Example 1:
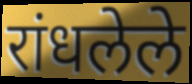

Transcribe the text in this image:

रांधलेले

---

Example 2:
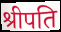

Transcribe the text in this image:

श्रीपति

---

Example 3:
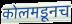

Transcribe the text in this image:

कोलमडूनच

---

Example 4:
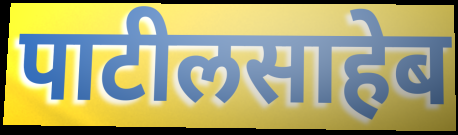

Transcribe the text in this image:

पाटीलसाहेब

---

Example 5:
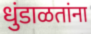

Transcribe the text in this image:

धुंडाळतांना